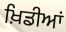
ਖ਼ਿਡੀਆਂ